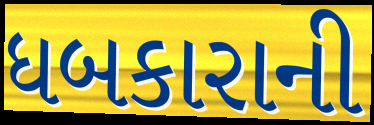
ધબકારાની